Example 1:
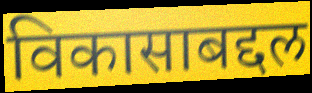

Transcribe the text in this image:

विकासाबद्दल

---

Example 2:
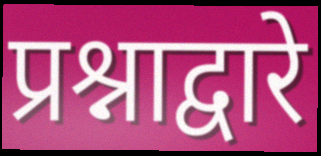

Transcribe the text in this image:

प्रश्नाद्वारे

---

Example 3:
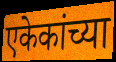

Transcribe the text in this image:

एकेकांच्या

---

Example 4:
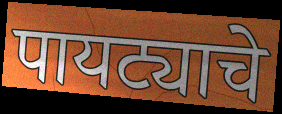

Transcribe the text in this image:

पायट्याचे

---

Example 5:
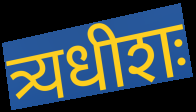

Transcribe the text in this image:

त्र्यधीशः